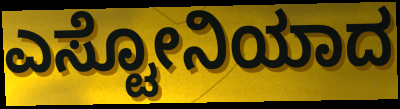
ಎಸ್ಟೋನಿಯಾದ